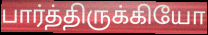
பார்த்திருக்கியோ